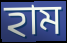
হাম